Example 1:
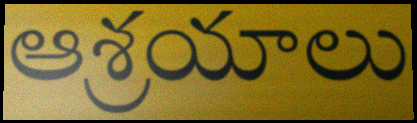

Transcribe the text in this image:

ఆశ్రయాలు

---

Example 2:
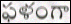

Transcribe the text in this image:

ఫళంగా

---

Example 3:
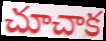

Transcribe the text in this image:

చూచాక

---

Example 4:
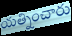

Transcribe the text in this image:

యత్నించారు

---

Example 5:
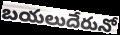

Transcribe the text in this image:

బయలుదేరునో